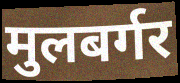
मुलबर्गर